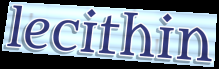
lecithin